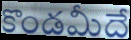
కొండమీదే